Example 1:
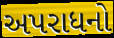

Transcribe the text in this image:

અપરાધનો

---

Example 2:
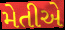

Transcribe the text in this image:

મેતીએ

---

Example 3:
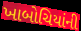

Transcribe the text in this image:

ખાબોચિયાંની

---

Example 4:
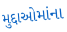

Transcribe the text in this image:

મુદ્દાઓમાંના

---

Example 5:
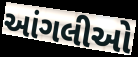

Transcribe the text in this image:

આંગલીઓ